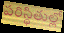
పరిస్థితుల్లో